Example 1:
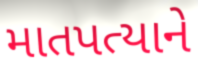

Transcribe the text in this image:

માતપત્યાને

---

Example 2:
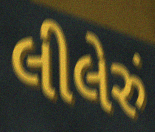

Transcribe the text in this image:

લીલેરું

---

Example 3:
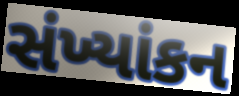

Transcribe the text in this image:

સંખ્યાંકન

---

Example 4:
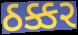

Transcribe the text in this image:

ઠક્કર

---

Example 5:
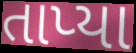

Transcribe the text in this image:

તાપ્યા